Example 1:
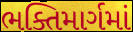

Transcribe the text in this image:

ભક્તિમાર્ગમાં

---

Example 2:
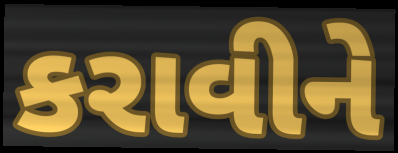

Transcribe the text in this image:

કરાવીને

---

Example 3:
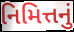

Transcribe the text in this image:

નિમિત્તનું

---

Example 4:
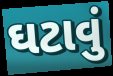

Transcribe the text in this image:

ઘટાવું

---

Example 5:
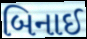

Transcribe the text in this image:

બિનાઈ